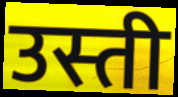
उस्ती